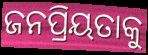
ଜନପ୍ରିୟତାକୁ